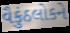
વૈકુંઠલોકને